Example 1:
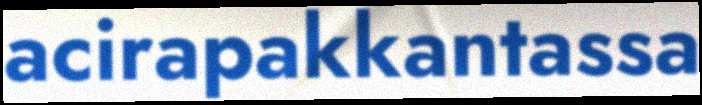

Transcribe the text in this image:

acirapakkantassa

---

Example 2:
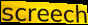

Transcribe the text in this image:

screech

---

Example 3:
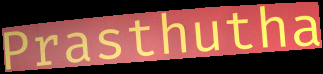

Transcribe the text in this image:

Prasthutha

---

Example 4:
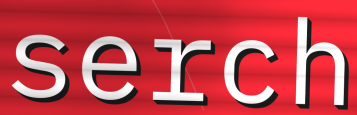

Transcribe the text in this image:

serch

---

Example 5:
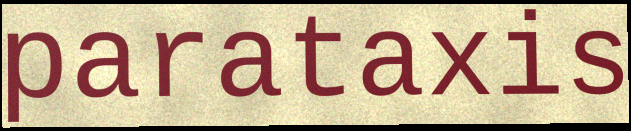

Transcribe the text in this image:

parataxis